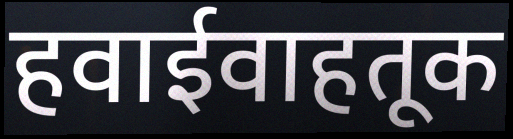
हवाईवाहतूक